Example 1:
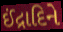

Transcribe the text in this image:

ઈંદ્રાદિને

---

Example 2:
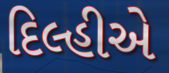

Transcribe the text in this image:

દિલ્હીએ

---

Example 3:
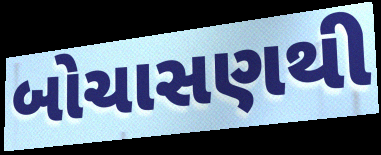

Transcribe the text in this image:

બોચાસણથી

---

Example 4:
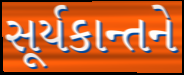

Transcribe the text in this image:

સૂર્યકાન્તને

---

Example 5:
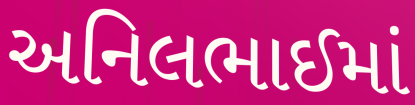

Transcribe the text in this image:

અનિલભાઈમાં